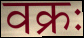
वक्रः